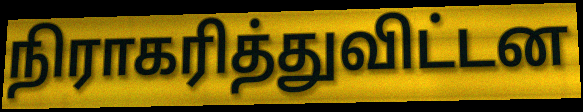
நிராகரித்துவிட்டன